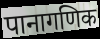
पानागणिक